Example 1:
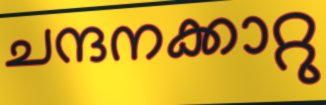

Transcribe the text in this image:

ചന്ദനക്കാറ്റു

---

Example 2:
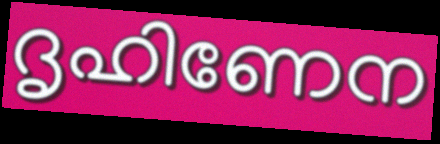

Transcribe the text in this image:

ദൃഹിണേന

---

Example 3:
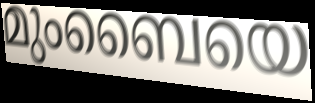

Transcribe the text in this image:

മുംബൈയെ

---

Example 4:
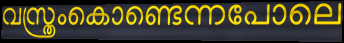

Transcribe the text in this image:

വസ്ത്രംകൊണ്ടെന്നപോലെ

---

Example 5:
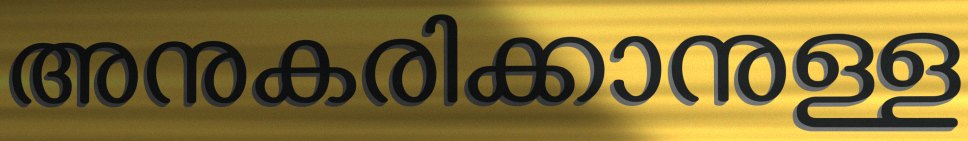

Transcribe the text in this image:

അനുകരിക്കാനുള്ള